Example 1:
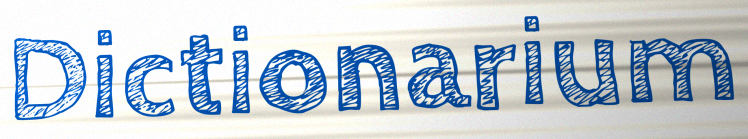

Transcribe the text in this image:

Dictionarium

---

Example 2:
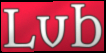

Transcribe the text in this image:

Lub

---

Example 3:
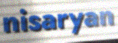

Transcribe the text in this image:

nisaryan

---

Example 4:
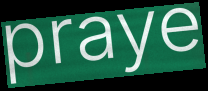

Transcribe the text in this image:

praye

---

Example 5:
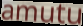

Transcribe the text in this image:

amutu